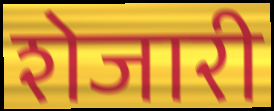
शेजारी